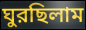
ঘুরছিলাম